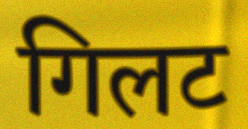
गिलट